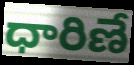
ధారిణే